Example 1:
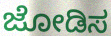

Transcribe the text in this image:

ಜೋಡಿಸ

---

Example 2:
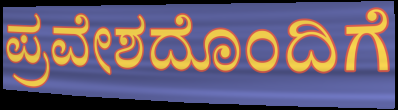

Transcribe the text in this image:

ಪ್ರವೇಶದೊಂದಿಗೆ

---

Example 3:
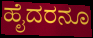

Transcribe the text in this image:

ಹೈದರನೂ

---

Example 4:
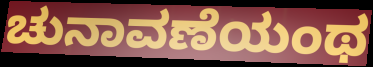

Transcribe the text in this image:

ಚುನಾವಣೆಯಂಥ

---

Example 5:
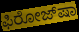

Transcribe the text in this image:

ಫಿರೋಜ್‌ಷಾ